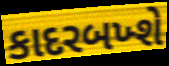
કાદરબખ્શે